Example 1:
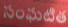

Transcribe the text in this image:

సంఘటిత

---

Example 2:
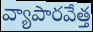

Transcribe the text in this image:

వ్యాపారవేత్త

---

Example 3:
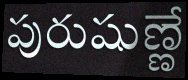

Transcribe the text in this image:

పురుషుణ్ణే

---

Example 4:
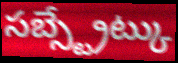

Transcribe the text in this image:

సబ్స్ట్రేట్కు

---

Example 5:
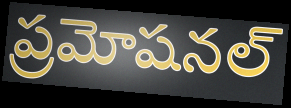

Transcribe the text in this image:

ప్రమోషనల్